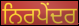
ਨਿਰਪੇਂਦਰ